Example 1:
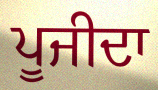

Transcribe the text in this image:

ਪੂਜੀਦਾ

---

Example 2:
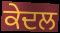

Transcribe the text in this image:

ਕੇਦਲ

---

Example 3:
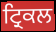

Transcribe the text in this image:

ਟ੍ਰਿਕਲ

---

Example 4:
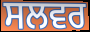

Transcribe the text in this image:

ਸਲਵਰ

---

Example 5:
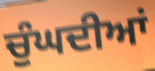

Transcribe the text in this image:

ਚੁੰਘਦੀਆਂ